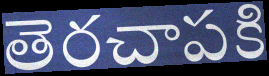
తెరచాపకి